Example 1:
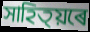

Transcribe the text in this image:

সাহিত্য়ৰে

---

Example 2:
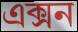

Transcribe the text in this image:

এক্সন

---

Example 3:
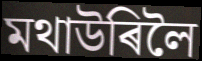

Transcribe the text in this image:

মথাউৰিলৈ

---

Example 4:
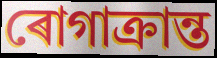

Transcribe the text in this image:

ৰোগাক্ৰান্ত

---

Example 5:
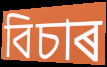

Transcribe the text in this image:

বিচাৰ